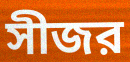
সীজর